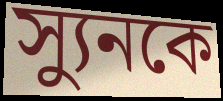
স্যুনকে